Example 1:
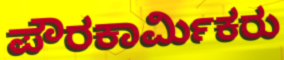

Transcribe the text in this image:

ಪೌರಕಾರ್ಮಿಕರು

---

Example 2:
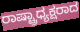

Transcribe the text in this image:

ರಾಷ್ಟ್ರಾಧ್ಯಕ್ಷರಾದ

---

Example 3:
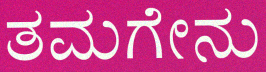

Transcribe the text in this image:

ತಮಗೇನು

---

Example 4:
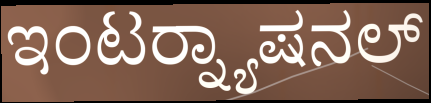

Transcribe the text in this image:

ಇಂಟರ್‍ನ್ಯಾಷನಲ್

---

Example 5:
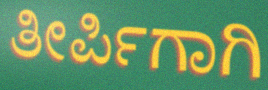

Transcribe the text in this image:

ತೀರ್ಪಿಗಾಗಿ